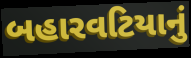
બહારવટિયાનું